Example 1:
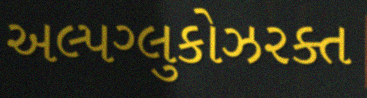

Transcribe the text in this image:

અલ્પગ્લુકોઝરક્ત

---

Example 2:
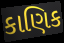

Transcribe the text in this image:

કાણિક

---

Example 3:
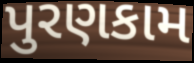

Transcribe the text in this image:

પુરણકામ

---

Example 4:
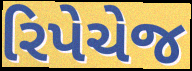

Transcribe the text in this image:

રિપેચેજ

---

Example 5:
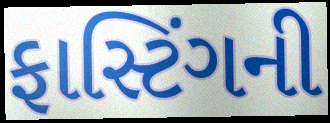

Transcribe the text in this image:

ફાસ્ટિંગની